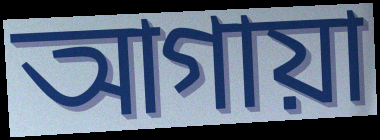
আগায়া